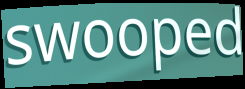
swooped